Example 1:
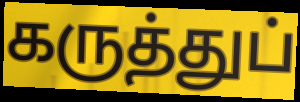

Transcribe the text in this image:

கருத்துப்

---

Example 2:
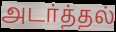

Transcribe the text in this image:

அடர்த்தல்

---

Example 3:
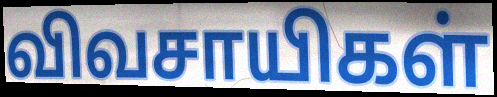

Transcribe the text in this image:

விவசாயிகள்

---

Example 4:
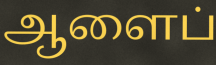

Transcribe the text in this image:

ஆளைப்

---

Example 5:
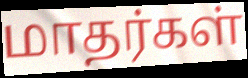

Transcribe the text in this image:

மாதர்கள்